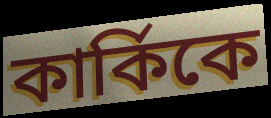
কার্কিকে